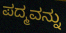
ಪದ್ಮವನ್ನು